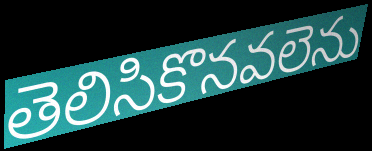
తెలిసికొనవలెను